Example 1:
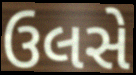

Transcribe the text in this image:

ઉલસે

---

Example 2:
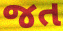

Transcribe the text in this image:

જત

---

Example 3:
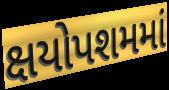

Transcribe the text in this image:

ક્ષયોપશમમાં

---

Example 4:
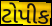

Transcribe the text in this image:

ટોપીક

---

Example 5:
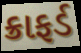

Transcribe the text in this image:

ક્રાફર્ડ